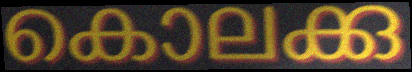
കൊലക്കു